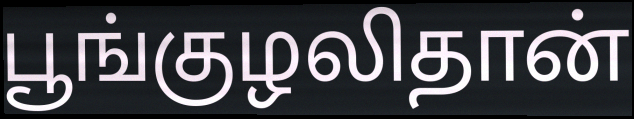
பூங்குழலிதான்